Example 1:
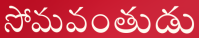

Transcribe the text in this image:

సోమవంతుడు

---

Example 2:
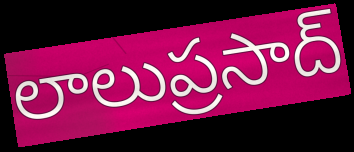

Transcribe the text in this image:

లాలుప్రసాద్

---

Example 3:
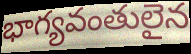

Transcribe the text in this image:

భాగ్యవంతులైన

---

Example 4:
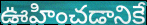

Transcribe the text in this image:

ఊహించడానికే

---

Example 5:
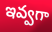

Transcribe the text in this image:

ఇవ్వగా